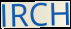
IRCH